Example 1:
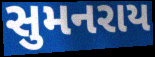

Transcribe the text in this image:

સુમનરાય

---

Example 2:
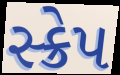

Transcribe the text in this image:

સ્ક્રેપ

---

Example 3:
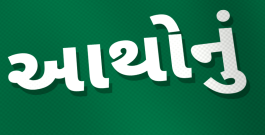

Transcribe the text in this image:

આથોનું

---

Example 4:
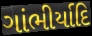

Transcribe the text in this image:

ગાંભીર્યાદિ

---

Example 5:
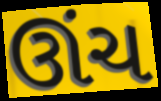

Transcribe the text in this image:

ઊંચ